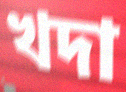
খদা